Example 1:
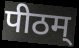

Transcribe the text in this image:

पीठम्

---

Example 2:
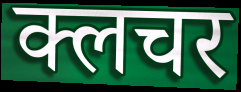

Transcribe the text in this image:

क्लचर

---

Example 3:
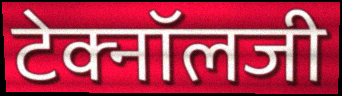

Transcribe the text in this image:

टेक्‍नॉलजी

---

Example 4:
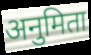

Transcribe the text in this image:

अनुमिता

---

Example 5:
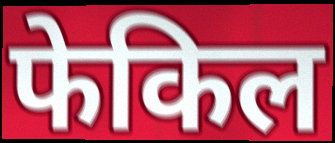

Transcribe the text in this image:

फेकिल